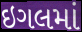
ઇગલમાં